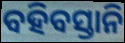
ବହିବସ୍ତାନି